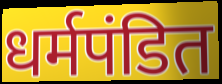
धर्मपंडित